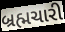
બ્રહ્મચારી